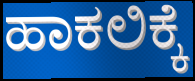
ಹಾಕಲಿಕ್ಕೆ